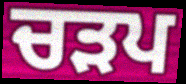
ਚੜਪ